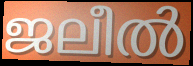
ജലീൽ